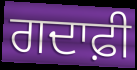
ਗਦਾਫ਼ੀ